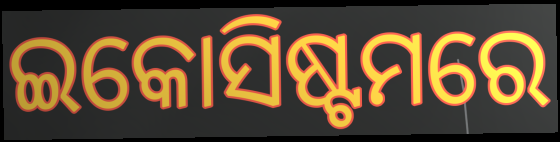
ଇକୋସିଷ୍ଟମରେ